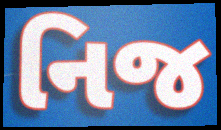
નિજ